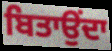
ਬਿਤਾਉਂਦਾ